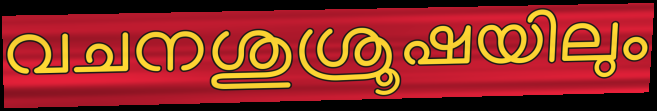
വചനശുശ്രൂഷയിലും